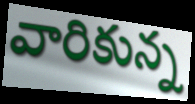
వారికున్న